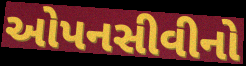
ઓપનસીવીનો